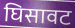
घिसावट